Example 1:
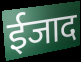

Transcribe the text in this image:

ईजाद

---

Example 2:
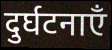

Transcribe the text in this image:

दुर्घटनाएँ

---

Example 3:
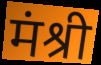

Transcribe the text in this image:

मंश्री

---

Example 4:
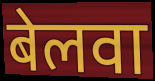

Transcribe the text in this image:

बेलवा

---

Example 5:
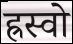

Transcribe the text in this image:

ह्रस्वो